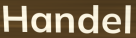
Handel